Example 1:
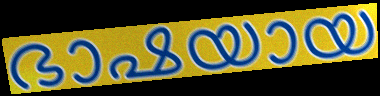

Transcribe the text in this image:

ഭാഷയായ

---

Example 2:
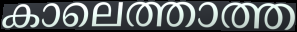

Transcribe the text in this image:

കാലെത്താത്ത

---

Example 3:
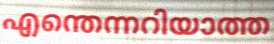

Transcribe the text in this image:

എന്തെന്നറിയാത്ത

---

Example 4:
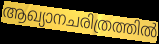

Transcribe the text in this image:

ആഖ്യാനചരിത്രത്തിൽ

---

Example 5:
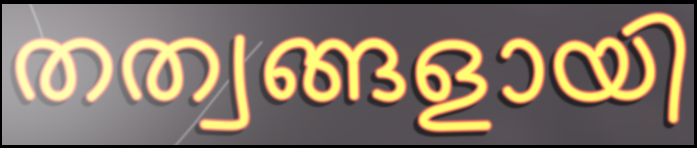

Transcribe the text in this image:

തത്വങ്ങളായി